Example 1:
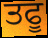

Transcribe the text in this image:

ਤਫੂ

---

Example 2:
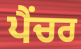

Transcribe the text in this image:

ਪੈਂਚਰ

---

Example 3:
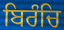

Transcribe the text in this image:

ਬਿਰੰਚਿ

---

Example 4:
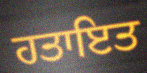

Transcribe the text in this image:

ਹਤਾਇਤ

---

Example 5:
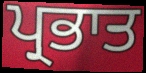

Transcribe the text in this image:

ਪ੍ਰਭਾਤ